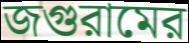
জগুরামের